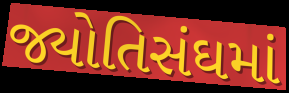
જ્યોતિસંઘમાં